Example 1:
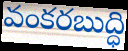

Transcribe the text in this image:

వంకరబుద్ధి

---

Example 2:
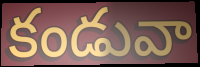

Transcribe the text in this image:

కండువా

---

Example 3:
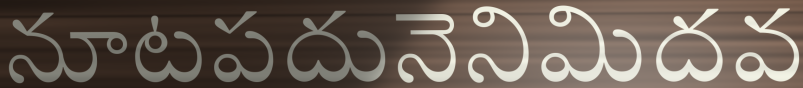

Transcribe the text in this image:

నూటపదునెనిమిదవ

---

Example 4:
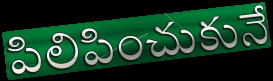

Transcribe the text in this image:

పిలిపించుకునే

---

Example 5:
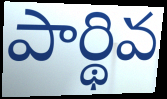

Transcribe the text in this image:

పార్థివ